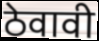
ठेवावी